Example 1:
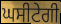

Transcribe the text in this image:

ਘਸੀਟੇਗੀ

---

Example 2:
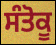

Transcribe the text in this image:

ਸੰਤੋਕੂ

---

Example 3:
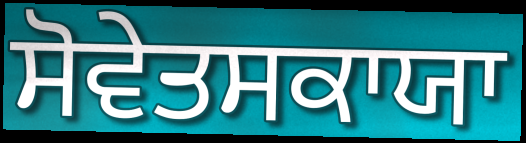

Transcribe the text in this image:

ਸੋਵੇਤਸਕਾਯਾ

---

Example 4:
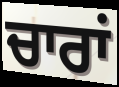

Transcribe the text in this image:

ਚਾਰਾਂ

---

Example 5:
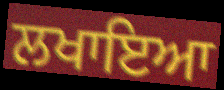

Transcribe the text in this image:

ਲਖਾਇਆ